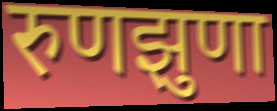
रुणझुणा